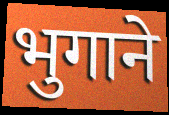
भुगाने